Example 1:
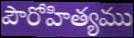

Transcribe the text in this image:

పౌరోహిత్యము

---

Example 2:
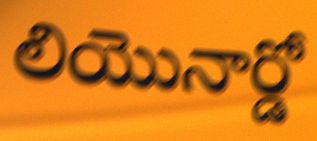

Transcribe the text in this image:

లియొనార్డో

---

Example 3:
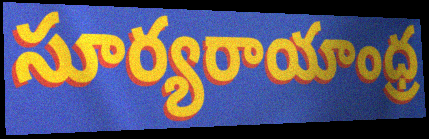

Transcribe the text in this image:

సూర్యరాయాంధ్ర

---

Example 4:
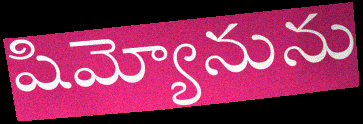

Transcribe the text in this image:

షిమ్యోనును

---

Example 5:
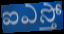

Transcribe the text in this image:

ఐఎస్తో